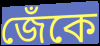
জেঁকে